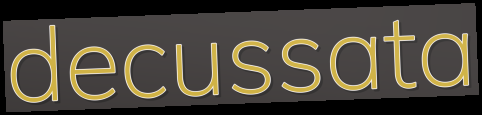
decussata